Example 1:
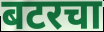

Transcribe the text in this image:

बटरचा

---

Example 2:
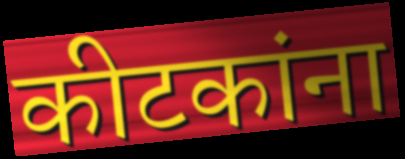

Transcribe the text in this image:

कीटकांना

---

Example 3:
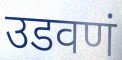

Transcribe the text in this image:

उडवणं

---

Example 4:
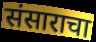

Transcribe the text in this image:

संसाराचा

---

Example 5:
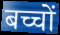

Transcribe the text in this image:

बच्चों